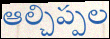
ఆల్చిప్పల